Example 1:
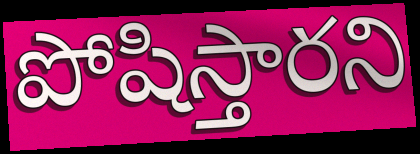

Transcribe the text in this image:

పోషిస్తారని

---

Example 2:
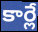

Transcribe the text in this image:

కార్లే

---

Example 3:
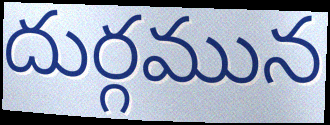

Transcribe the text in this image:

దుర్గమున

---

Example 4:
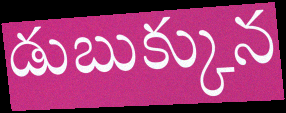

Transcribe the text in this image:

డుబుక్కున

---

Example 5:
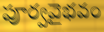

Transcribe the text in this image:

పూర్వవైభవం